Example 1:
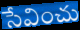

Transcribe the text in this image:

సేవించు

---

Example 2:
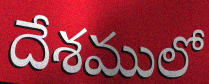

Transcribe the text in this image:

దేశములో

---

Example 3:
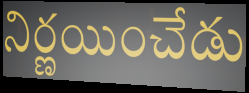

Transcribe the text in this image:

నిర్ణయించేడు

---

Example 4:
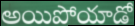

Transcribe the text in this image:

అయిపోయాడో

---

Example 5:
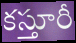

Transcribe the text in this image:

కస్తూరీ